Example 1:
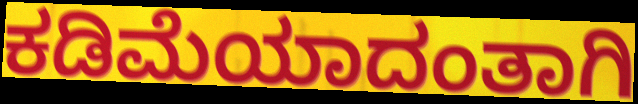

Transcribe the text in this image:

ಕಡಿಮೆಯಾದಂತಾಗಿ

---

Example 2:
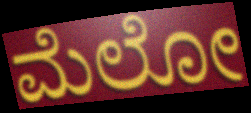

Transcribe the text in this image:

ಮೆಲೋ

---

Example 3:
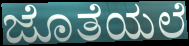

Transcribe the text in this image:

ಜೊತೆಯಲೆ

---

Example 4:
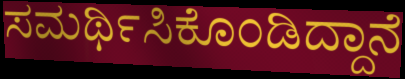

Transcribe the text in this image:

ಸಮರ್ಥಿಸಿಕೊಂಡಿದ್ದಾನೆ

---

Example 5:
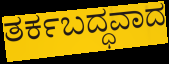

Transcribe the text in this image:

ತರ್ಕಬದ್ಧವಾದ